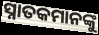
ସ୍ନାତକମାନଙ୍କୁ